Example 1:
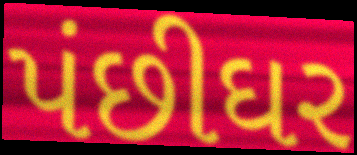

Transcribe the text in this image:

પંછીઘર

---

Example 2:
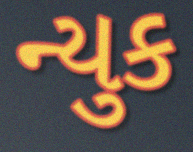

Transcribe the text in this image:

ન્યુક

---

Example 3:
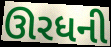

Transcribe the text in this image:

ઊરધની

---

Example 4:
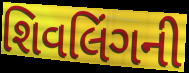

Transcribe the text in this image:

શિવલિંગની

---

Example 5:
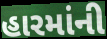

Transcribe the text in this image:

હારમાંની